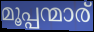
മൂപ്പന്മാര്